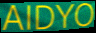
AIDYO